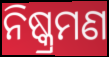
ନିଷ୍କ୍ରମଣ